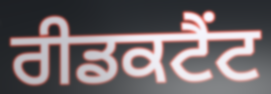
ਰੀਡਕਟੈਂਟ